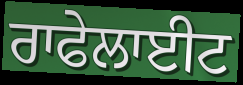
ਰਾਫੇਲਾਈਟ